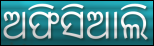
ଅଫିସିଆଲି